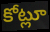
కోట్లూ